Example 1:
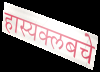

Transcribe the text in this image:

हास्यक्लबचे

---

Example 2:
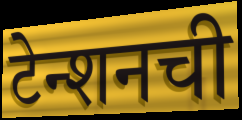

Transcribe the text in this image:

टेन्शनची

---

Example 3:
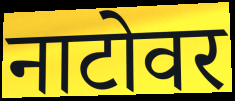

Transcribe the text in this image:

नाटोवर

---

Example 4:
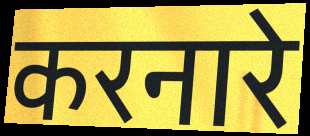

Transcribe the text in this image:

करनारे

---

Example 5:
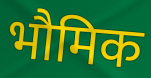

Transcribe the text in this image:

भौमिक